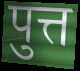
पुत्त